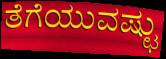
ತೆಗೆಯುವಷ್ಟು